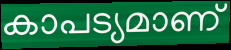
കാപട്യമാണ്